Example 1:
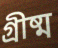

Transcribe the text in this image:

গ্রীষ্ম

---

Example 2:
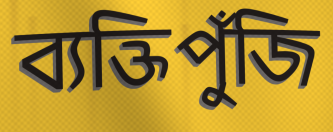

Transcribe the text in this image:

ব্যক্তিপুঁজি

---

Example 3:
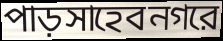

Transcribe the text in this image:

পাড়সাহেবনগরে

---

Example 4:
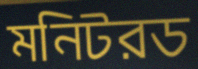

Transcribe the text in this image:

মনিটরড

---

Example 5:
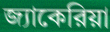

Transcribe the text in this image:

জ্যাকেরিয়া